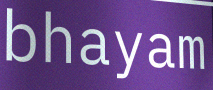
bhayam